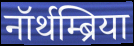
नॉर्थम्ब्रिया